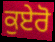
ਕੁਏਰੋ